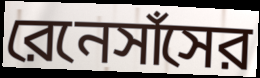
রেনেসাঁসের